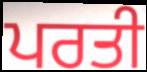
ਪਰਤੀ